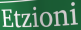
Etzioni